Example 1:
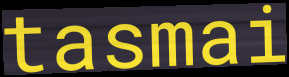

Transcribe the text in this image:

tasmai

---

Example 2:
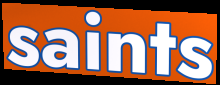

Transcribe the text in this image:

saints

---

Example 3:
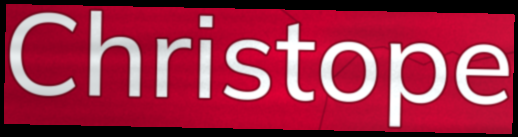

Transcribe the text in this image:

Christope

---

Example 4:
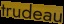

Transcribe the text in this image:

trudeau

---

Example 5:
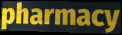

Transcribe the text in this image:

pharmacy